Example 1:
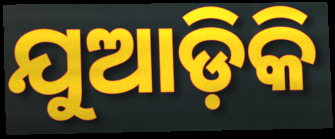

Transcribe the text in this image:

ଯୁଆଡ଼ିକି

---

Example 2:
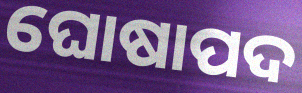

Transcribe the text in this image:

ଘୋଷାପଦ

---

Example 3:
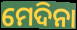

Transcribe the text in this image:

ମେଦିନା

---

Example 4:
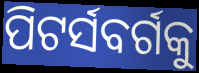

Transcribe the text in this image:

ପିଟର୍ସବର୍ଗକୁ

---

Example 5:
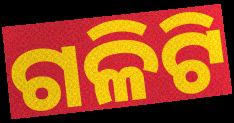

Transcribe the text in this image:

ଗଳିଟି